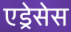
एड्रेसेस